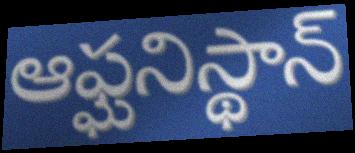
ఆఫ్ఘనిస్థాన్